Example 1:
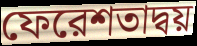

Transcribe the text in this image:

ফেরেশতাদ্বয়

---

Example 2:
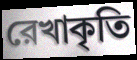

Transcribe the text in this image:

রেখাকৃতি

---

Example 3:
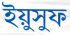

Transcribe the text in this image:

ইয়ুসুফ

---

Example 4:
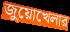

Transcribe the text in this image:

জুয়োখেলার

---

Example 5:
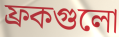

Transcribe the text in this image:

ফ্রকগুলো